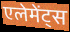
एलेमेंट्स